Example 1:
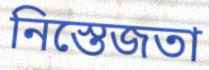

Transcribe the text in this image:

নিস্তেজতা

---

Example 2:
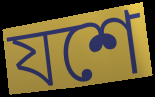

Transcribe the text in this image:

যশে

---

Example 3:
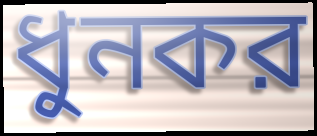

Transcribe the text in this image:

ধুনকর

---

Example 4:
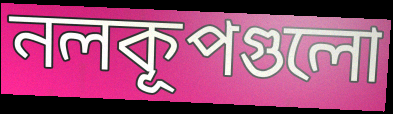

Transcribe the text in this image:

নলকূপগুলো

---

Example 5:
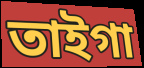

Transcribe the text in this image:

তাইগা